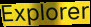
Explorer